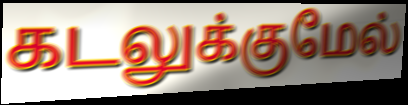
கடலுக்குமேல்